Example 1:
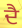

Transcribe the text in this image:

ਦੈ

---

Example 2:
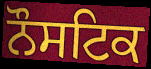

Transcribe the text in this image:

ਨੌਸਟਿਕ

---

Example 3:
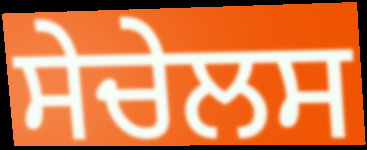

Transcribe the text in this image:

ਸੇਚੇਲਸ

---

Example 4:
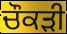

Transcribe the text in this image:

ਚੌਕੜੀ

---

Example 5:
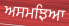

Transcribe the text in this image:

ਅਸਮਝਿਆ